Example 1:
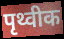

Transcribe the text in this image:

पृथ्वीक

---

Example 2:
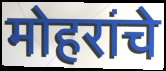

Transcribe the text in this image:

मोहरांचे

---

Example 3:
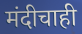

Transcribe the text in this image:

मंदीचाही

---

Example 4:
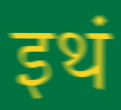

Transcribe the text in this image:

इथं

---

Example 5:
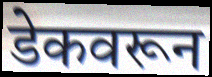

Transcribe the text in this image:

डेकवरून